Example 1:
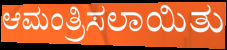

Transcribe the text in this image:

ಆಮಂತ್ರಿಸಲಾಯಿತು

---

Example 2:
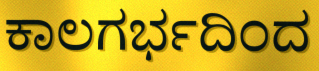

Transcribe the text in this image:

ಕಾಲಗರ್ಭದಿಂದ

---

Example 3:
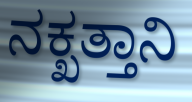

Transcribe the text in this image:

ನಕ್ಖತ್ತಾನಿ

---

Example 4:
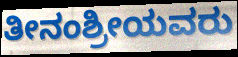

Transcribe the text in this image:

ತೀನಂಶ್ರೀಯವರು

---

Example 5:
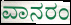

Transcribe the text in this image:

ವಾನರಂ